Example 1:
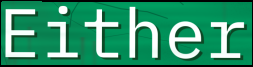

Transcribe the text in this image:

Either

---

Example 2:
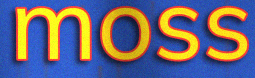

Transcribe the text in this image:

moss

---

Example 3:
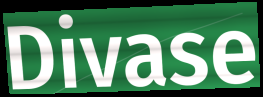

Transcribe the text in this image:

Divase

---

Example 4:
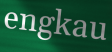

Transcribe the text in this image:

engkau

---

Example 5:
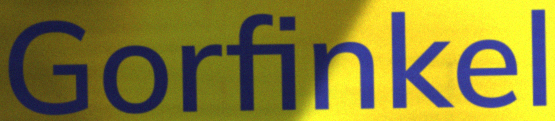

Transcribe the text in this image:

Gorfinkel